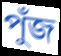
পুঁজ